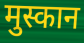
मुस्कान